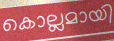
കൊല്ലമായി